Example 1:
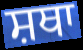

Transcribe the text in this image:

ਸ਼ਥਾ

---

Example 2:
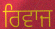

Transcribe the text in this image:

ਰਿਵਾਜ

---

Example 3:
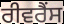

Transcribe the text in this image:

ਰੀਵਰੈਂਸ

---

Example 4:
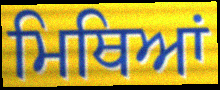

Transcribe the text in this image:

ਮਿਥਿਆਂ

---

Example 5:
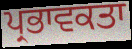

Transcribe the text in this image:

ਪ੍ਰਭਾਵਕਤਾ